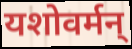
यशोवर्मन्